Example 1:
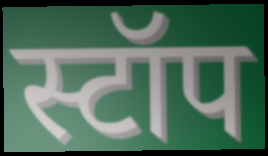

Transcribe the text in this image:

स्टॉप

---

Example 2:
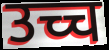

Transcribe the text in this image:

उच्च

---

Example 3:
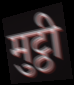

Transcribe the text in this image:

मुट्ठी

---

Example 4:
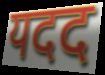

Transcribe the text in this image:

यदद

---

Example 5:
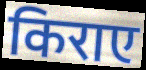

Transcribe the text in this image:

किराए